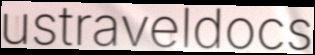
ustraveldocs